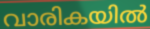
വാരികയിൽ